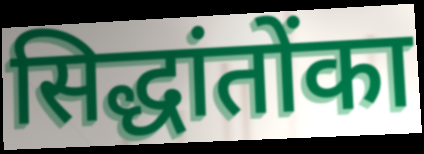
सिद्धांतोंका